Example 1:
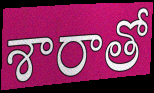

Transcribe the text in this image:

శారాతో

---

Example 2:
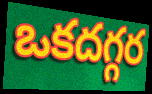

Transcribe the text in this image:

ఒకదగ్గర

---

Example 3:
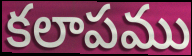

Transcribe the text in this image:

కలాపము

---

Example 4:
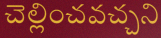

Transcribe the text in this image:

చెల్లించవచ్చని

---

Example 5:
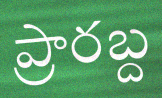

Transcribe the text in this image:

ప్రారబ్ద